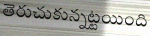
తెరుచుకున్నట్టయింది